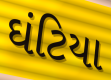
ઘંટિયા